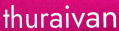
thuraivan